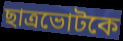
ছাত্রভোটকে